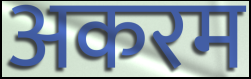
अकरम